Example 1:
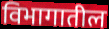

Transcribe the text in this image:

विभागातील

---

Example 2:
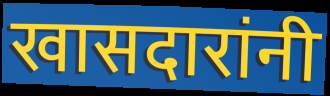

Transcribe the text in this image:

खासदारांनी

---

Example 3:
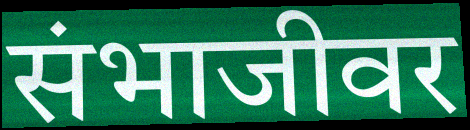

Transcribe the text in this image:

संभाजीवर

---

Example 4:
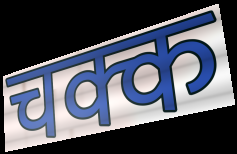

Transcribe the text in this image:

चक्क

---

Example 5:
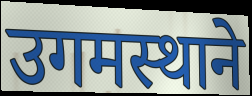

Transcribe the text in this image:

उगमस्थाने